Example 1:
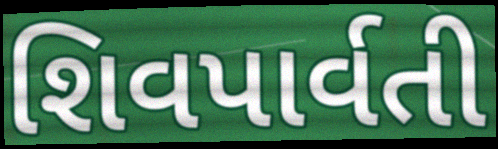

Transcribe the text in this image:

શિવપાર્વતી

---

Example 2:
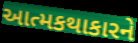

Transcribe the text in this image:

આત્મકથાકારને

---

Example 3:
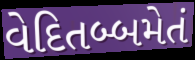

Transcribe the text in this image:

વેદિતબ્બમેતં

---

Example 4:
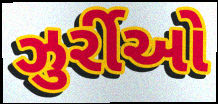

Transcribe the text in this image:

ઝુર્રીઓ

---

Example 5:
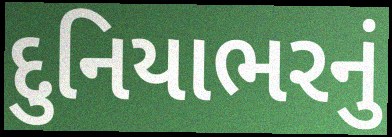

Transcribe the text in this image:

દુનિયાભરનું